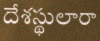
దేశస్థులారా